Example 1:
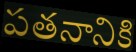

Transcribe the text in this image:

పతనానికి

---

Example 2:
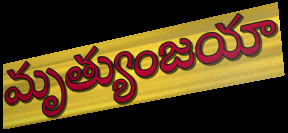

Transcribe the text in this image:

మృత్యుంజయా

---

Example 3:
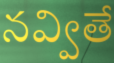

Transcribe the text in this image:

నవ్వితే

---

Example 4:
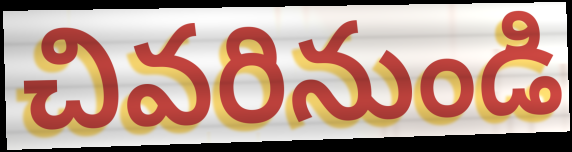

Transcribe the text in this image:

చివరినుండి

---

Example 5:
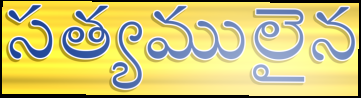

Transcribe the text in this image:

సత్యములైన